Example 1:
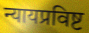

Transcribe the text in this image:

न्यायप्रविष्ट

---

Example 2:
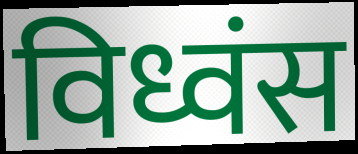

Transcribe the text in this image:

विध्वंस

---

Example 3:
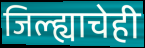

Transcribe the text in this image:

जिल्ह्याचेही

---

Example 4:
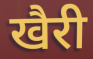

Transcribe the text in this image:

खैरी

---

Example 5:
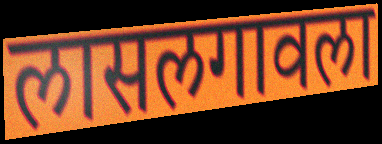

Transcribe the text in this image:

लासलगावला